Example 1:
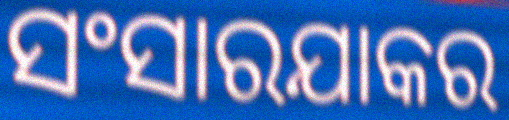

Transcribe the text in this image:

ସଂସାରଯାକର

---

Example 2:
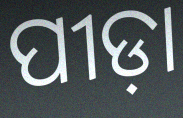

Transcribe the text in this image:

ପୀଡ଼ା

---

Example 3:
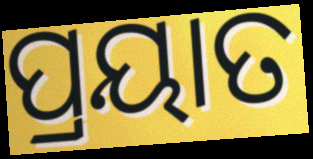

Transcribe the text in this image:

ପ୍ରୟାତ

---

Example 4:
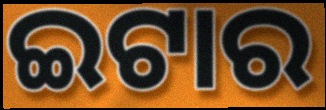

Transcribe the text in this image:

ଇଟାର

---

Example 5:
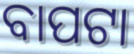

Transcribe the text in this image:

ବାପଟା